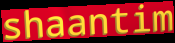
shaantim